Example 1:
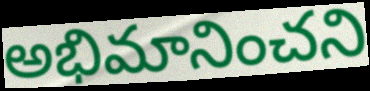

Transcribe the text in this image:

అభిమానించని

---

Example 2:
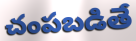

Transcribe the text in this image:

చంపబడితే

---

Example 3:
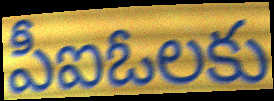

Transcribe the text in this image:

పీఐఓలకు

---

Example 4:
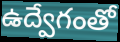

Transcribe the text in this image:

ఉద్వేగంతో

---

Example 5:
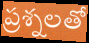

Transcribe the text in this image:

ప్రశ్నలతో